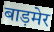
बाड़मेर